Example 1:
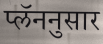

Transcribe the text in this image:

प्लॅननुसार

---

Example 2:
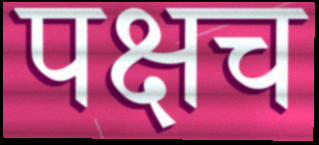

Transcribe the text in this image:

पक्षच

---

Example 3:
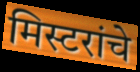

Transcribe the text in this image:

मिस्टरांचे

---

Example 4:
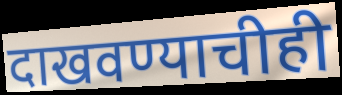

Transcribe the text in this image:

दाखवण्याचीही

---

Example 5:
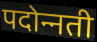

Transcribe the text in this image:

पदोन्‍नती